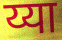
य्या